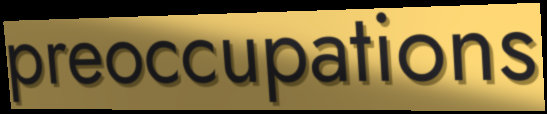
preoccupations